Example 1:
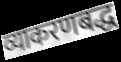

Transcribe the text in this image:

व्याकरणबद्ध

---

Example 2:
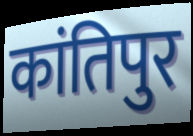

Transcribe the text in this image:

कांतिपुर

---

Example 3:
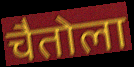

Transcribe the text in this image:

चैतोला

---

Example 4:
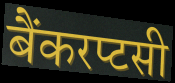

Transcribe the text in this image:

बैंकरप्टसी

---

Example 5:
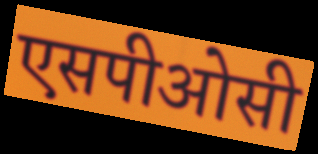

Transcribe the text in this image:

एसपीओसी